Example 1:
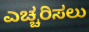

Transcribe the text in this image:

ಎಚ್ಚರಿಸಲು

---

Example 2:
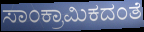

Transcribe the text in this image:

ಸಾಂಕ್ರಾಮಿಕದಂತೆ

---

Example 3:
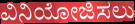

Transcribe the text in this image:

ವಿನಿಯೋಜಿಸಲು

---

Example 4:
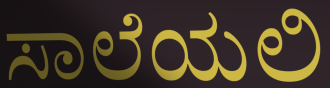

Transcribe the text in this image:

ಸಾಲೆಯಲಿ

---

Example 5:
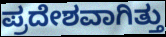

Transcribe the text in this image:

ಪ್ರದೇಶವಾಗಿತ್ತು